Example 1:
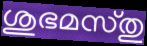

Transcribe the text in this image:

ശുഭമസ്തു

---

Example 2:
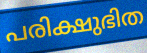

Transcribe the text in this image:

പരിക്ഷുഭിത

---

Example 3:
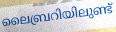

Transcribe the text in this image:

ലൈബ്രറിയിലുണ്ട്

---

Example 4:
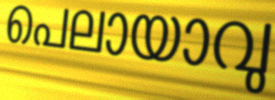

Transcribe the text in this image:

പെലായാവു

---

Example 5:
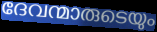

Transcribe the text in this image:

ദേവന്മാരുടെയും